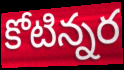
కోటిన్నర